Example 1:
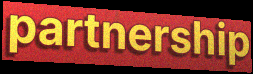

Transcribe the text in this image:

partnership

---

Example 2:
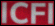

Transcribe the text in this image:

ICFI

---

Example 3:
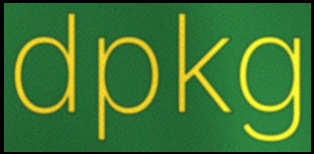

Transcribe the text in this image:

dpkg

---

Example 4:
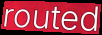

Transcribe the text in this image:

routed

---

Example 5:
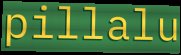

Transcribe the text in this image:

pillalu